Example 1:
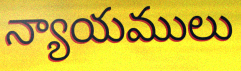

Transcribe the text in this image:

న్యాయములు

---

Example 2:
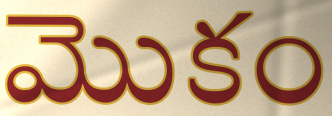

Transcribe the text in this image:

మొకం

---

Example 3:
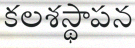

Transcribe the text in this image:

కలశస్థాపన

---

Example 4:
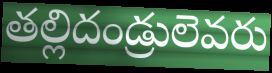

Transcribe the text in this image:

తల్లిదండ్రులెవరు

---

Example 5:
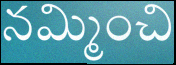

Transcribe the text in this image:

నమ్మించి